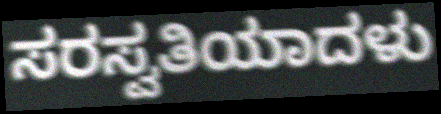
ಸರಸ್ವತಿಯಾದಳು